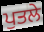
ਪੁਤਲੇ